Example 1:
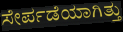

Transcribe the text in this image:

ಸೇರ್ಪಡೆಯಾಗಿತ್ತು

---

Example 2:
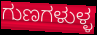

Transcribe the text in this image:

ಗುಣಗಳುಳ್ಳ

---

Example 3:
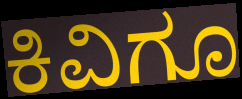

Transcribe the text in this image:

ಕಿವಿಗೂ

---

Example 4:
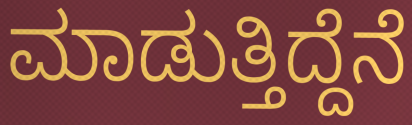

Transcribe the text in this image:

ಮಾಡುತ್ತಿದ್ದೆನೆ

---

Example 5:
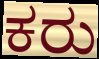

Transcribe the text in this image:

ಕರು